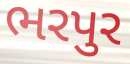
ભરપુર